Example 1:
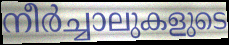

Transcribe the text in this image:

നീർച്ചാലുകളുടെ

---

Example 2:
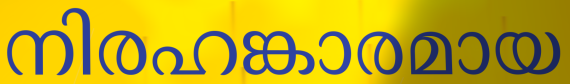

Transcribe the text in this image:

നിരഹങ്കാരമായ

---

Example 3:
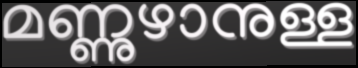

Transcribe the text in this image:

മണ്ണുഴാനുള്ള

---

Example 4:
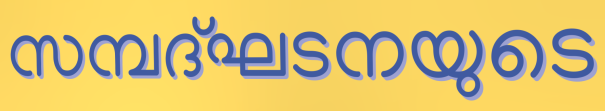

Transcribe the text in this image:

സമ്പദ്ഘടനയുടെ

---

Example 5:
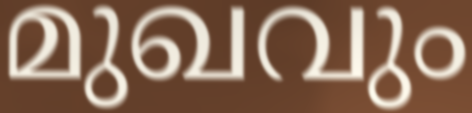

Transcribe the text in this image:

മുഖവും